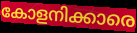
കോളനിക്കാരെ